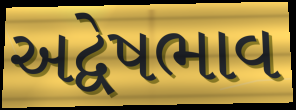
અદ્વેષભાવ